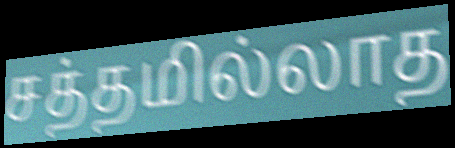
சத்தமில்லாத